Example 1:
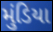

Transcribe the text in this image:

મુંડિયા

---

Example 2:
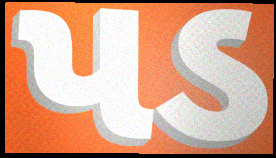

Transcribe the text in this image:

પડ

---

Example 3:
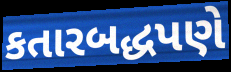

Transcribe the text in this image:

કતારબદ્ધપણે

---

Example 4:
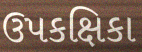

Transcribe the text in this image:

ઉપકક્ષિકા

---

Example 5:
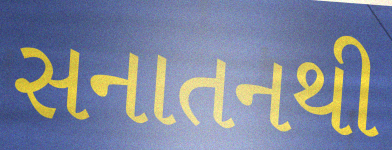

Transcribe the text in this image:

સનાતનથી